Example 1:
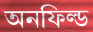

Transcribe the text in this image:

অনফিল্ড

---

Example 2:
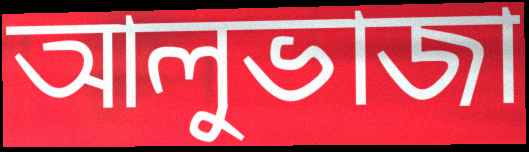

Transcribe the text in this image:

আলুভাজা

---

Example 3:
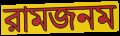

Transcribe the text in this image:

রামজনম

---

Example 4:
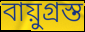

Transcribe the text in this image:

বায়ুগ্রস্ত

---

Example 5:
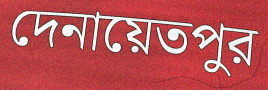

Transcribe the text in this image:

দেনায়েতপুর